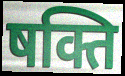
षक्ति